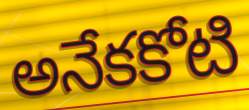
అనేకకోటి